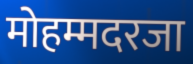
मोहम्मदरजा